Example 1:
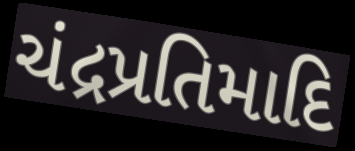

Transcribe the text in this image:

ચંદ્રપ્રતિમાદિ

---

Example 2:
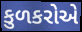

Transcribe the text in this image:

કુળકરોએ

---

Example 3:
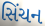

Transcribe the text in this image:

સિંચન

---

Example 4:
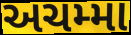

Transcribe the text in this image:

અચમ્મા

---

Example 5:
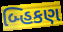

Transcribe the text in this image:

બ્હિકણ